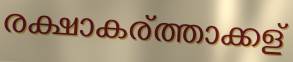
രക്ഷാകര്ത്താക്കള്